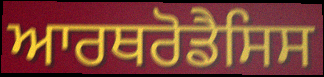
ਆਰਥਰੋਡੈਸਿਸ